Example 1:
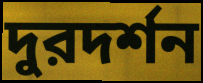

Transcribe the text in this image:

দুরদর্শন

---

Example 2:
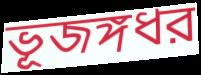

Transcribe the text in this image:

ভূজঙ্গধর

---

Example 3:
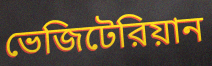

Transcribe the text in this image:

ভেজিটেরিয়ান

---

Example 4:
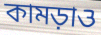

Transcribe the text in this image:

কামড়াও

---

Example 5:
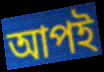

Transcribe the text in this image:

আপই